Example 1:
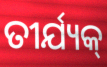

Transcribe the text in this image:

ତୀର୍ଯ୍ୟକ୍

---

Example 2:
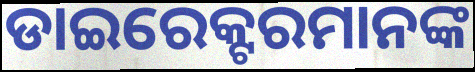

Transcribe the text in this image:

ଡାଇରେକ୍ଟରମାନଙ୍କ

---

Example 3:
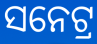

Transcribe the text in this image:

ସନେଟ୍ର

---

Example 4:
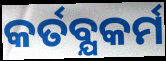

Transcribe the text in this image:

କର୍ତବ୍ଯକର୍ମ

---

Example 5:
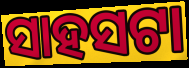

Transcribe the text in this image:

ସାହସଟା